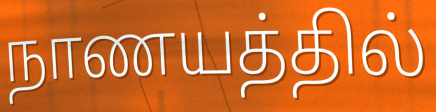
நாணயத்தில்